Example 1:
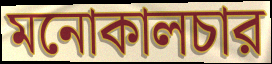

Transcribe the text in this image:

মনোকালচার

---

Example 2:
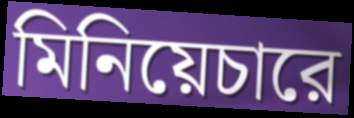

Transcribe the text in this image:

মিনিয়েচারে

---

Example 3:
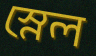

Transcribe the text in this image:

স্নেল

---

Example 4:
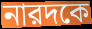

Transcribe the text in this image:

নারদকে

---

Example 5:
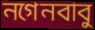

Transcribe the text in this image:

নগেনবাবু